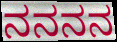
ನನನನ